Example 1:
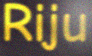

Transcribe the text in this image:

Riju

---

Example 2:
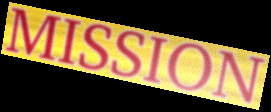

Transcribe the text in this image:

MISSION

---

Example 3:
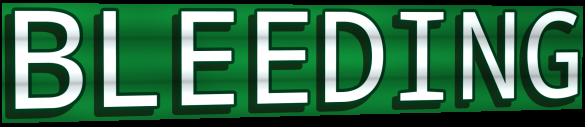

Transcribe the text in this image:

BLEEDING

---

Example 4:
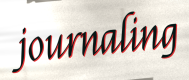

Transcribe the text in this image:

journaling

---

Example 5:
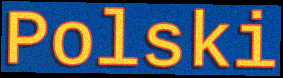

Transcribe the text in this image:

Polski